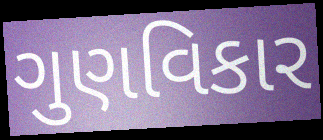
ગુણવિકાર